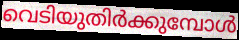
വെടിയുതിർക്കുമ്പോൾ